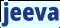
jeeva